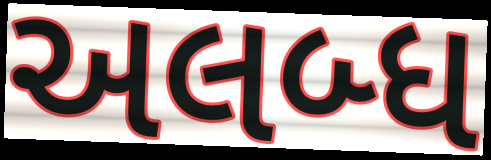
અલબ્ધ